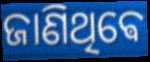
ଜାଣିଥିଵେ